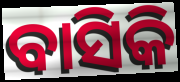
ବାସିକି